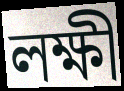
লক্ষী